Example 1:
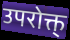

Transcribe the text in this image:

उपरोक्त्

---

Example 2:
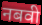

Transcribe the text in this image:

नबवी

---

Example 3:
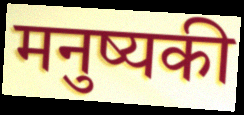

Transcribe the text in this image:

मनुष्यकी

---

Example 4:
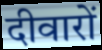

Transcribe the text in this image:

दीवारों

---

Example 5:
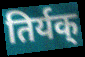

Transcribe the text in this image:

तिर्यक्